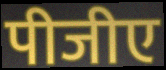
पीजीए